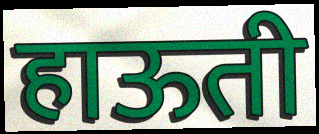
हाऊती